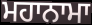
ਮਹਾਨਾਮਾ